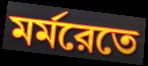
মর্মরেতে